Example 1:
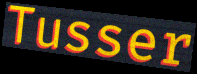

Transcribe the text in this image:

Tusser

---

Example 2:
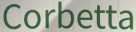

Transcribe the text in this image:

Corbetta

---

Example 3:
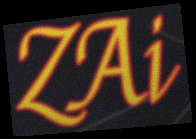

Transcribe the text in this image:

ZAi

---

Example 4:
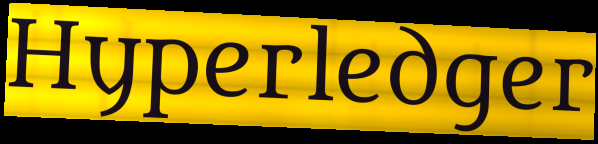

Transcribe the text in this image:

Hyperledger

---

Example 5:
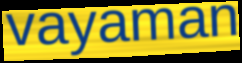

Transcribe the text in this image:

vayaman